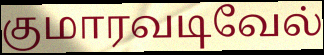
குமாரவடிவேல்